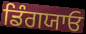
ਡਿੰਗਯਾਓ